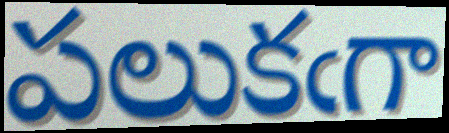
పలుకఁగా